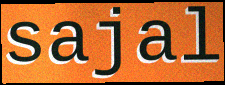
sajal